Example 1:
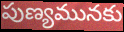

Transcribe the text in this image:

పుణ్యమునకు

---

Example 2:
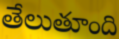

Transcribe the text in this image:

తేలుతూంది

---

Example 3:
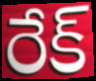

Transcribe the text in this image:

రేక్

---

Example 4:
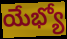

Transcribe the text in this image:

యేభ్యో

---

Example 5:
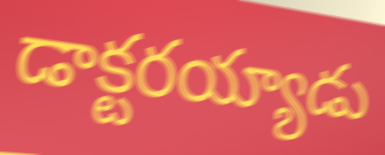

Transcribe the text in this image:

డాక్టరయ్యాడు